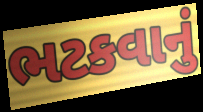
ભટકવાનું